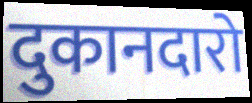
दुकानदारो